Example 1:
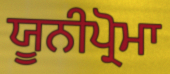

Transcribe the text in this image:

ਯੂਨੀਪ੍ਰੋਮਾ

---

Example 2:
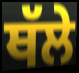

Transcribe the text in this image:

ਥੱਲੇ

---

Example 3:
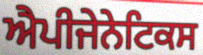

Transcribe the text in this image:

ਐਪੀਜੇਨੇਟਿਕਸ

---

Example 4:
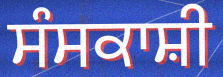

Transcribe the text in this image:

ਸੰਸਕਾਸ਼ੀ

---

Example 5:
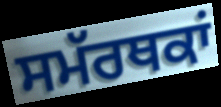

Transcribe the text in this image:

ਸਮੱਰਥਕਾਂ